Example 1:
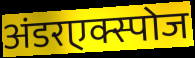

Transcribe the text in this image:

अंडरएक्स्पोज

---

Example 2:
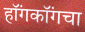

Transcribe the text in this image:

हॉंगकॉंगचा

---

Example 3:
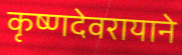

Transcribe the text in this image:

कृष्णदेवरायाने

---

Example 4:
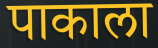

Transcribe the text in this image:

पाकाला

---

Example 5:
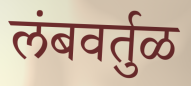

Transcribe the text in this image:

लंबवर्तुळ